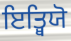
ਇਤ੍ਥਿਯੋ